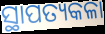
ସ୍ଥାପତ୍ୟକଳା